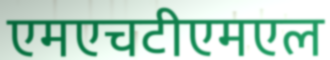
एमएचटीएमएल